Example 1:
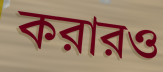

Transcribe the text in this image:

করারও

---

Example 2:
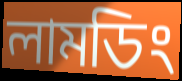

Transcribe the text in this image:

লামডিং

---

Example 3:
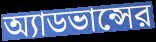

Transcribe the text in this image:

অ্যাডভান্সের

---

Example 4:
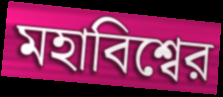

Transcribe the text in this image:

মহাবিশ্বের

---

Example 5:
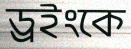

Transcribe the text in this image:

ড্রইংকে